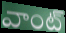
వాంట్